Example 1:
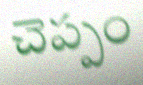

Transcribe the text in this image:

చెప్పం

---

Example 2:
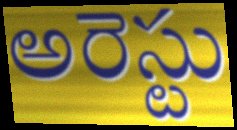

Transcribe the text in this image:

అరెస్టు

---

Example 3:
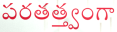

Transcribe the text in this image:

పరతత్త్వంగా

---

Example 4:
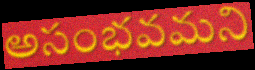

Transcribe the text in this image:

అసంభవమని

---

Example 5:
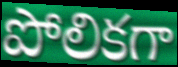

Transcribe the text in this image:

పోలికగా